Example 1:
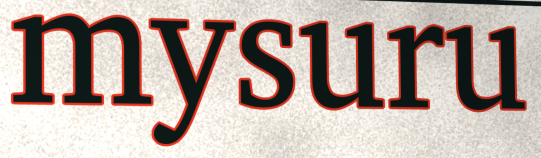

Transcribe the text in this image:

mysuru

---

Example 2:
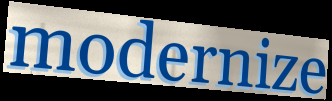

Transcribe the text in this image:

modernize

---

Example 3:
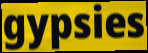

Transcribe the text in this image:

gypsies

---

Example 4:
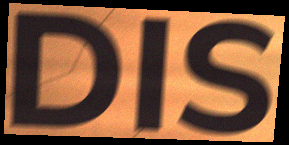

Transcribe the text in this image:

DIS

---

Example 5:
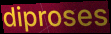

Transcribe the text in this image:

diproses